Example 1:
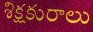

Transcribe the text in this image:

శిక్షకురాలు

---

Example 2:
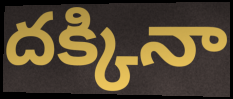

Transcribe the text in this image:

దక్కినా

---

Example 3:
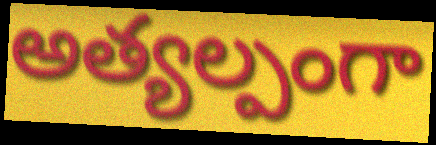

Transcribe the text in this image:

అత్యల్పంగా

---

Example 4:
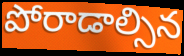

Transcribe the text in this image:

పోరాడాల్సిన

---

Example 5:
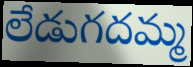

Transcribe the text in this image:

లేడుగదమ్మ